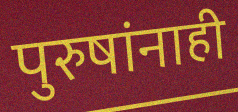
पुरुषांनाही